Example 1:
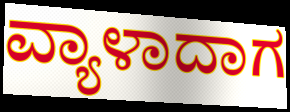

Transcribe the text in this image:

ವ್ಯಾಳಾದಾಗ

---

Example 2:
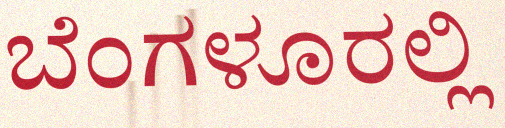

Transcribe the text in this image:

ಬೆಂಗಳೂರಲ್ಲಿ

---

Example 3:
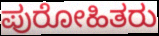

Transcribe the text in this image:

ಪುರೋಹಿತರು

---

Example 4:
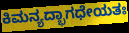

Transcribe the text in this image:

ಕಿಮನ್ಯದ್ಭಾಗಧೇಯತಃ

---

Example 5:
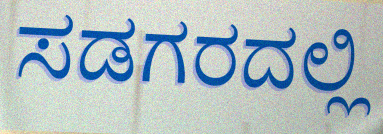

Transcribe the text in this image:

ಸಡಗರದಲ್ಲಿ